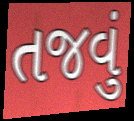
તજવું